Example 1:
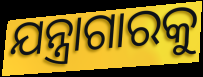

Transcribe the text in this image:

ଯନ୍ତ୍ରାଗାରକୁ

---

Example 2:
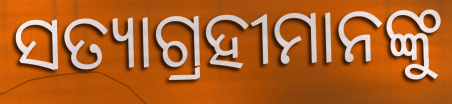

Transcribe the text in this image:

ସତ୍ୟାଗ୍ରହୀମାନଙ୍କୁ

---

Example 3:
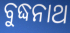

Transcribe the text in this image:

ବୁଦ୍ଧନାଥ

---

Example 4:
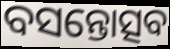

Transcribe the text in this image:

ବସନ୍ତୋତ୍ସବ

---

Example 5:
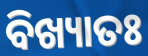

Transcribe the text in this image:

ବିଖ୍ୟାତଃ